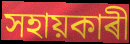
সহায়কাৰী